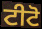
ਟੀਟੋ